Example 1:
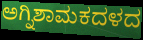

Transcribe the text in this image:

ಅಗ್ನಿಶಾಮಕದಳದ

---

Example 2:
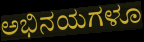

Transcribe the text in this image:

ಅಭಿನಯಗಳೂ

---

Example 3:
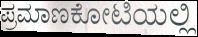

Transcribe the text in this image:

ಪ್ರಮಾಣಕೋಟಿಯಲ್ಲಿ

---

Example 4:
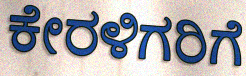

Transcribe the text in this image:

ಕೇರಳಿಗರಿಗೆ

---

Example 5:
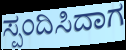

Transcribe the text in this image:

ಸ್ಪಂದಿಸಿದಾಗ